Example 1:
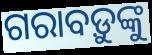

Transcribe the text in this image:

ଗରାବଡ଼ୁଙ୍କୁ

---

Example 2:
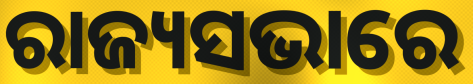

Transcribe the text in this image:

ରାଜ୍ୟସଭାରେ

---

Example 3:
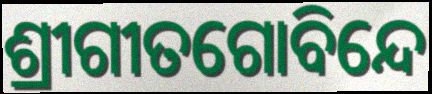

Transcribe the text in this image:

ଶ୍ରୀଗୀତଗୋବିନ୍ଦେ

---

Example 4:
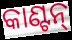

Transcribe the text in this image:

କାଣ୍ଟନ୍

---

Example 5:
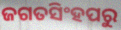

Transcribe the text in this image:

ଜଗତସିଂହପରୁ